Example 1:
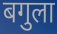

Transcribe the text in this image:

बगुला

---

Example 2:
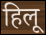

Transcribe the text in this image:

हिलू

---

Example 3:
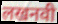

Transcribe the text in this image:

लखनवी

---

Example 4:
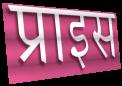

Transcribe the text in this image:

प्राइस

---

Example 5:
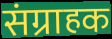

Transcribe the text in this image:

संग्राहक